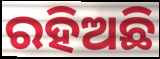
ରହିଅଛି